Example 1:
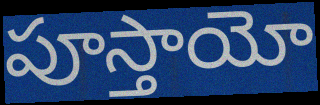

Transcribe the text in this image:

పూస్తాయో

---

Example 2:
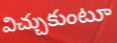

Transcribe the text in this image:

విచ్చుకుంటూ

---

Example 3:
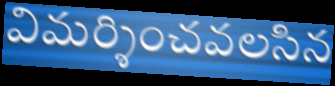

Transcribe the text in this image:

విమర్శించవలసిన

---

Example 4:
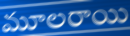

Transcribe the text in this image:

మూలరాయి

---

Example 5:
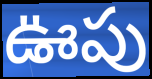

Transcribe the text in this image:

ఊపు